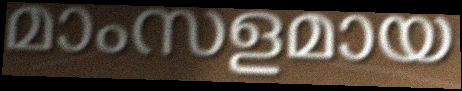
മാംസളമായ